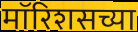
मॉरिशसच्या